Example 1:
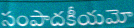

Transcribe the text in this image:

సంపాదకీయమో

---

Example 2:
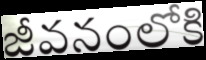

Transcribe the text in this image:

జీవనంలోకి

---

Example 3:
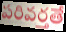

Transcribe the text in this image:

పరివర్తతే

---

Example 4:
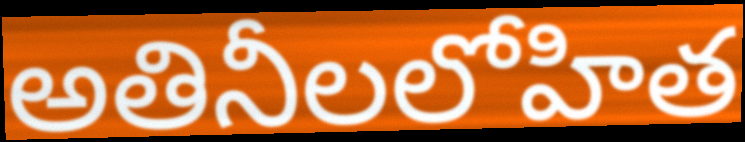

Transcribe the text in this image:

అతినీలలోహిత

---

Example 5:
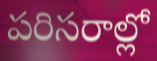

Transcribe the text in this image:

పరిసరాల్లో